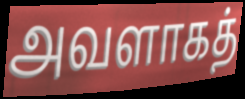
அவளாகத்